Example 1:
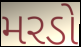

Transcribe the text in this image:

મરડો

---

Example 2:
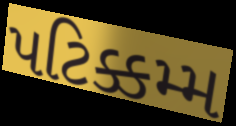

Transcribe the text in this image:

પટિક્કમ્મ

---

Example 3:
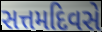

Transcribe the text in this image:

સત્તમદિવસે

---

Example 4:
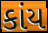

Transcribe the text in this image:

કાંય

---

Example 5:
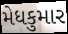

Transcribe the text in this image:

મેધકુમાર